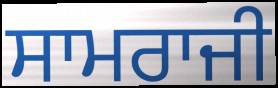
ਸਾਮਰਾਜੀ